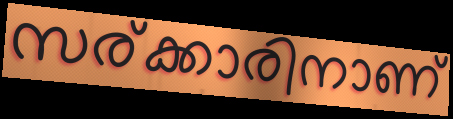
സര്ക്കാരിനാണ്